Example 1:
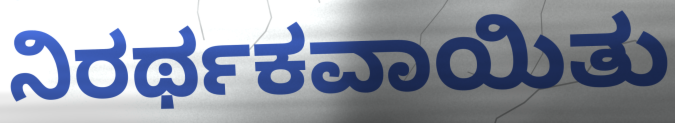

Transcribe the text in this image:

ನಿರರ್ಥಕವಾಯಿತು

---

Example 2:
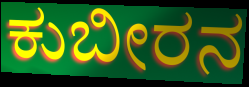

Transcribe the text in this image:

ಕುಬೀರನ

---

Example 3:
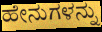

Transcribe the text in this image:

ಹೇನುಗಳನ್ನು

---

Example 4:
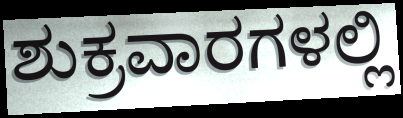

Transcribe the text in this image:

ಶುಕ್ರವಾರಗಳಲ್ಲಿ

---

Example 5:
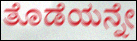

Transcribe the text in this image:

ತೊಡೆಯನ್ನೇ